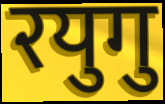
रयुगु